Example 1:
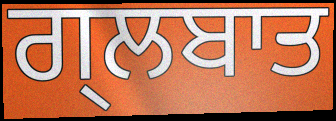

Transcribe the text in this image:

ਗ੍ਲਬਾਤ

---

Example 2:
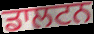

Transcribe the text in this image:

ਡਾਲਟਨ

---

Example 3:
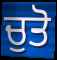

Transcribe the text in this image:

ਚੁਤੋ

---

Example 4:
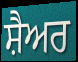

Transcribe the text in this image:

ਸ਼ੈਅਰ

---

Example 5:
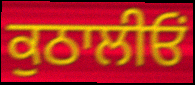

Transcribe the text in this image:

ਕੁਠਾਲੀਓਂ